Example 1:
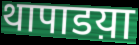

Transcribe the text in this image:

थापाडय़ा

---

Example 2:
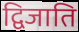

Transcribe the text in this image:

द्विजाति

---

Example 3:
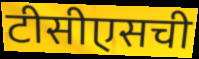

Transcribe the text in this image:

टीसीएसची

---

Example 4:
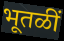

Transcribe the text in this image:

भूतळीं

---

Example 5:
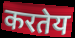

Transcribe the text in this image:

करतेय